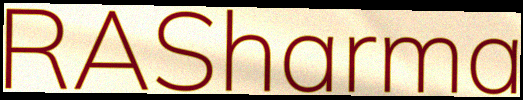
RASharma